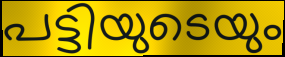
പട്ടിയുടെയും